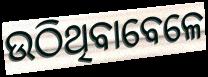
ଉଠିଥିବାବେଳେ